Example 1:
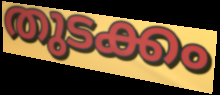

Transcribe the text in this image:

തുടക്കം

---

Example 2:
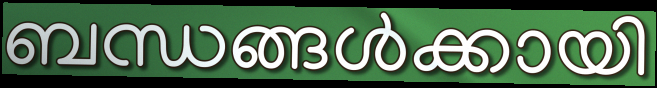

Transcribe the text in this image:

ബന്ധങ്ങൾക്കായി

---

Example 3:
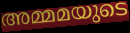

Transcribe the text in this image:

അമ്മമയുടെ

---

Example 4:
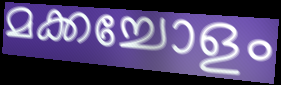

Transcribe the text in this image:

മക്കച്ചോളം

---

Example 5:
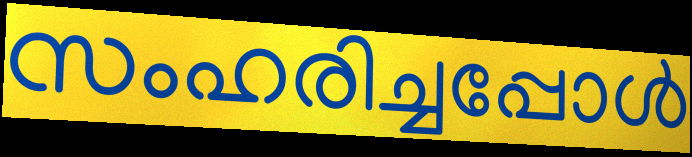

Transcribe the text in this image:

സംഹരിച്ചപ്പോൾ